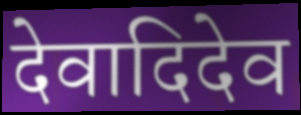
देवादिदेव